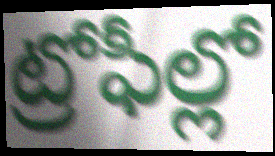
ట్రోఫీల్లో